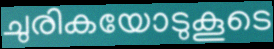
ചുരികയോടുകൂടെ